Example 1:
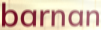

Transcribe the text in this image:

barnan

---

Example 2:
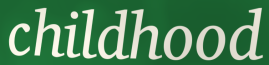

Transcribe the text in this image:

childhood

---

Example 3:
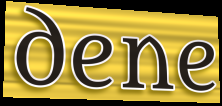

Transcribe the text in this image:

dene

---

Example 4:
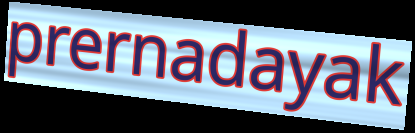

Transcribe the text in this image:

prernadayak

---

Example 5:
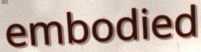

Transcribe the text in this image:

embodied